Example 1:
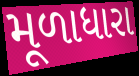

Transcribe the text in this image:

મૂળાધારા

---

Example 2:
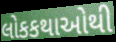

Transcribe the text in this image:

લોકકથાઓથી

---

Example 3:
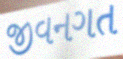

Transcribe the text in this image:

જીવનગત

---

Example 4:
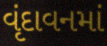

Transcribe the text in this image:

વૃંદાવનમાં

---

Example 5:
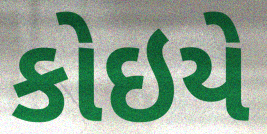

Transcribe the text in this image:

કોઇયે